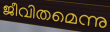
ജീവിതമെന്നു